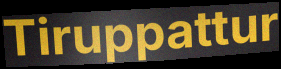
Tiruppattur